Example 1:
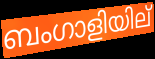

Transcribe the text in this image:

ബംഗാളിയില്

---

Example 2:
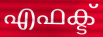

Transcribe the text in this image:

എഫക്ട്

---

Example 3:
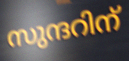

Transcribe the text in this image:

സുന്ദറിന്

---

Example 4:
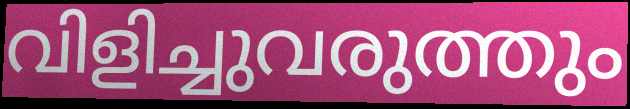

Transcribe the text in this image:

വിളിച്ചുവരുത്തും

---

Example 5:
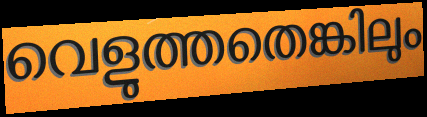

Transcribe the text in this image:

വെളുത്തതെങ്കിലും